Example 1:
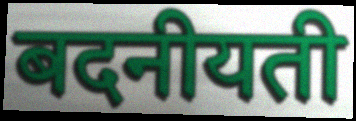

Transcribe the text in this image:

बदनीयती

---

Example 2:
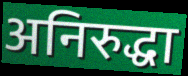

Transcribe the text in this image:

अनिरुद्धा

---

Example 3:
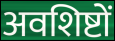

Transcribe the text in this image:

अवशिष्टों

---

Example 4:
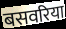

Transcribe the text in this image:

बसवरिया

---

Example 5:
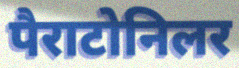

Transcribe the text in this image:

पैराटोनिलर